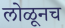
लोळूनच